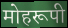
मोहरूपी